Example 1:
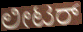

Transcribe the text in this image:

ಲೀಟರ್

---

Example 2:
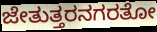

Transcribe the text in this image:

ಜೇತುತ್ತರನಗರತೋ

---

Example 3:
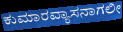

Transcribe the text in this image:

ಕುಮಾರವ್ಯಾಸನಾಗಲೀ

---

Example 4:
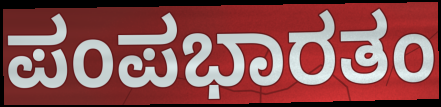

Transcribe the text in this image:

ಪಂಪಭಾರತಂ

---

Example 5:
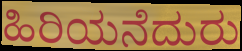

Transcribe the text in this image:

ಹಿರಿಯನೆದುರು